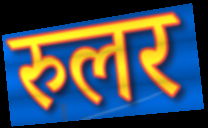
रुलर